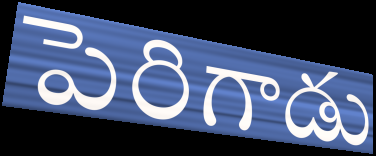
పెరిగాడు